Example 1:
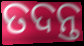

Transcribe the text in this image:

ତଦନ୍ତ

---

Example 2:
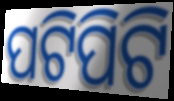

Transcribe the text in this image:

ପଟିପିଟି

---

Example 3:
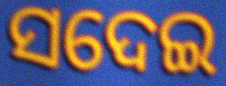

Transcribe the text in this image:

ସଦେଇ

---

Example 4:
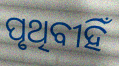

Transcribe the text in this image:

ପୃଥିବୀହିଁ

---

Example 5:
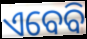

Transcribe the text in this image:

ଏବେବି